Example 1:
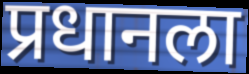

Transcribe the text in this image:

प्रधानला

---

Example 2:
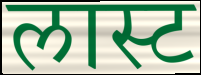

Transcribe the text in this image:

लास्ट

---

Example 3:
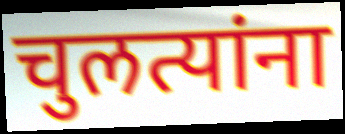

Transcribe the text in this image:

चुलत्यांना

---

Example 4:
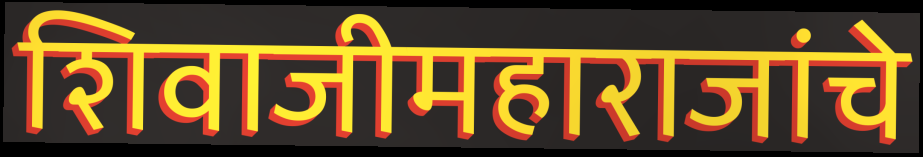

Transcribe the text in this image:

शिवाजीमहाराजांचे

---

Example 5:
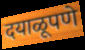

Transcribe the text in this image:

दयाळूपणे